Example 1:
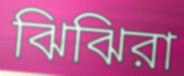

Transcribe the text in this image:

ঝিঝিরা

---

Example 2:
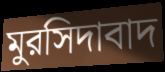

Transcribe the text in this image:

মুরসিদাবাদ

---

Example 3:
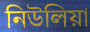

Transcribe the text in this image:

নিউলিয়া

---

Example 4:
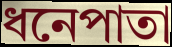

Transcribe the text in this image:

ধনেপাতা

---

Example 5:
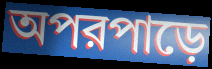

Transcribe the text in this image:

অপরপাড়ে